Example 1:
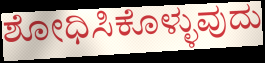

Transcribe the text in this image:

ಶೋಧಿಸಿಕೊಳ್ಳುವುದು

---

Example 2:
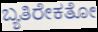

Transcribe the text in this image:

ಬ್ಯತಿರೇಕತೋ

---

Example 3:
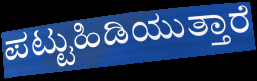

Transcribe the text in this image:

ಪಟ್ಟುಹಿಡಿಯುತ್ತಾರೆ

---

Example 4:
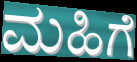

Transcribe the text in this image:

ಮಹಿಗೆ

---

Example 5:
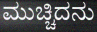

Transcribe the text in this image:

ಮುಚ್ಚಿದನು